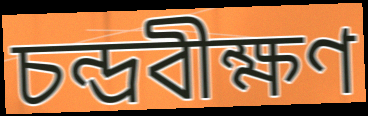
চন্দ্রবীক্ষণ